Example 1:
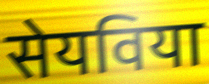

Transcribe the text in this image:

सेयविया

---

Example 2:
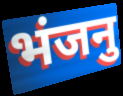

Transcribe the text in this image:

भंजनु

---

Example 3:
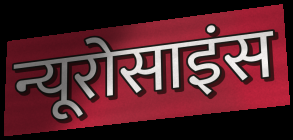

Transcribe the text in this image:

न्यूरोसाइंस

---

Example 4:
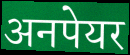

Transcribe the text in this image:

अनपेयर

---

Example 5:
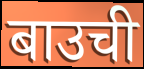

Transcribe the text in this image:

बाउची